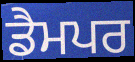
ਡੈਮਪਰ